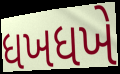
ધખધખે